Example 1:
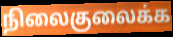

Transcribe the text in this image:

நிலைகுலைக்க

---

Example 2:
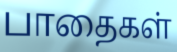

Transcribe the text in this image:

பாதைகள்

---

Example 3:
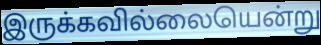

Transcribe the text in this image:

இருக்கவில்லையென்று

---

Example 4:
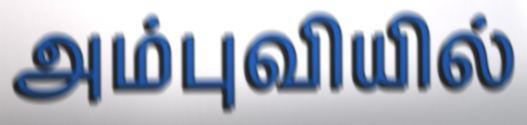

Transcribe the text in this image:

அம்புவியில்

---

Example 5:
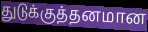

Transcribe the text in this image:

துடுக்குத்தனமான